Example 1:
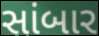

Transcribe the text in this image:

સાંબાર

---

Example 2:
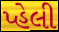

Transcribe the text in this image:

પ્હેલી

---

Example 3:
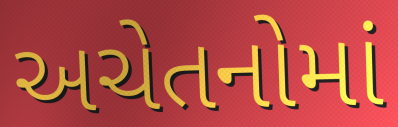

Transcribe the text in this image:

અચેતનોમાં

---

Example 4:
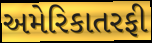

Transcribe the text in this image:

અમેરિકાતરફી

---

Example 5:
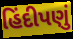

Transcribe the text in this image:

હિંદીપણું